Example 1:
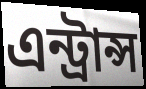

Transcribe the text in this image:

এন্ট্রান্স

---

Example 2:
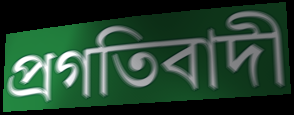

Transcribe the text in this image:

প্রগতিবাদী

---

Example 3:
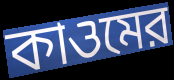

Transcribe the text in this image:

কাওমের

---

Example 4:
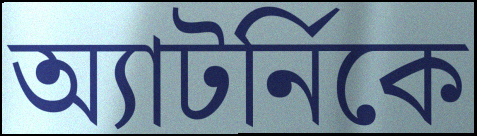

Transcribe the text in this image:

অ্যাটর্নিকে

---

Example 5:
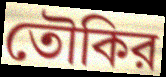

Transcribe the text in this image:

তৌকির